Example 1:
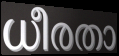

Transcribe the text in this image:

ധീരതാ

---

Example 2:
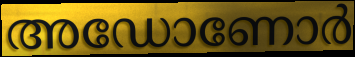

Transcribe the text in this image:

അഡോണോർ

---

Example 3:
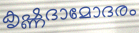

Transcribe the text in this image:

കൃഷ്ണദാമോദരം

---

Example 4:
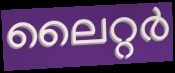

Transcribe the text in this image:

ലൈറ്റർ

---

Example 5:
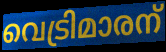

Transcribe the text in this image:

വെട്രിമാരന്